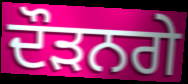
ਦੌੜਨਗੇ